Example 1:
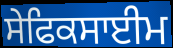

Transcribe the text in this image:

ਸੇਫਿਕਸਾਈਮ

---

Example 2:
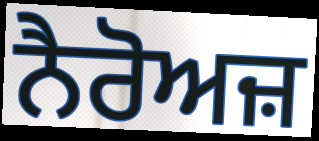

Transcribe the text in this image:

ਨੈਰੋਅਜ਼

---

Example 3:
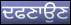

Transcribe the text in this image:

ਦਫਣਾਉਣ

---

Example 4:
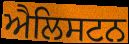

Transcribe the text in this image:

ਐਲਿਸਟਨ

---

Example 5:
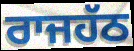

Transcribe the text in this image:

ਰਾਜਹੱਠ